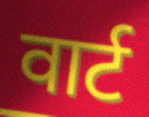
वार्ट